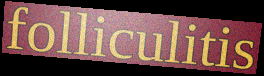
folliculitis